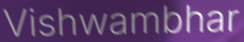
Vishwambhar